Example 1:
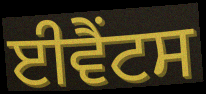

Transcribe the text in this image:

ਈਵੈਂਟਸ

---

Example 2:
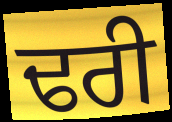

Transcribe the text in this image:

ਢਰੀ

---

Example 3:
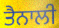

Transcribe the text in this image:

ਤੈਨਾਲੀ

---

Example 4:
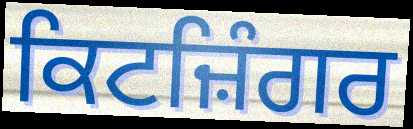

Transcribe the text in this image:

ਕਿਟਜ਼ਿੰਗਰ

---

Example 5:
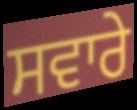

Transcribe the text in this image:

ਸਵਾਰੇ